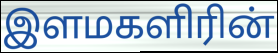
இளமகளிரின்